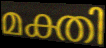
മക്തി